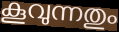
കൂവുന്നതും